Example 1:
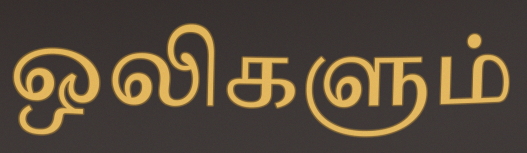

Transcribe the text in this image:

ஒலிகளும்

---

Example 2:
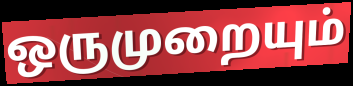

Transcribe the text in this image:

ஒருமுறையும்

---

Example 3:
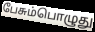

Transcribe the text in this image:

பேசும்பொழுது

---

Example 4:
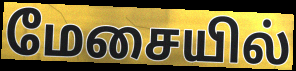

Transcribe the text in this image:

மேசையில்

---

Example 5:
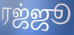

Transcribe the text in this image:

ரஜ்ஜூ